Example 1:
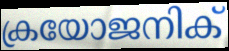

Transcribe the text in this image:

ക്രയോജനിക്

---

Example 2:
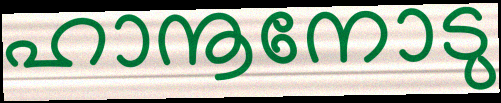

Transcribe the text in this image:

ഹാനൂനോടു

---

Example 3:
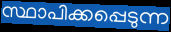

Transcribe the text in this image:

സ്ഥാപിക്കപ്പെടുന്ന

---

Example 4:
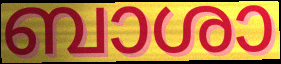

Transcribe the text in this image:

ബാശാ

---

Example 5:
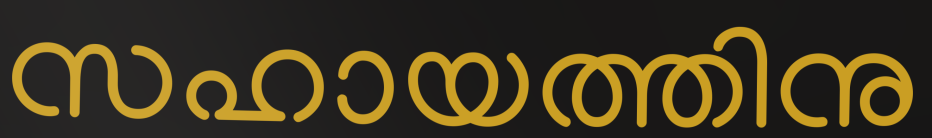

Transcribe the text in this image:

സഹായത്തിനു